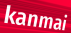
kanmai